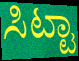
ಸಿಟ್ಟಾ